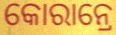
କୋରାନ୍ରେ